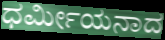
ಧರ್ಮೀಯನಾದ